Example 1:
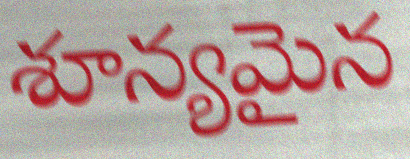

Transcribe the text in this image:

శూన్యమైన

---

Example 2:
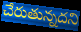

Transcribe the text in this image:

చేరుతున్నదని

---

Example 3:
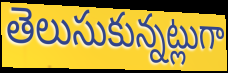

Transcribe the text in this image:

తెలుసుకున్నట్లుగా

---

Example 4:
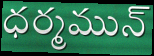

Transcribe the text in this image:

ధర్మమున్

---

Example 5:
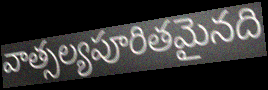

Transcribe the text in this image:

వాత్సల్యపూరితమైనది